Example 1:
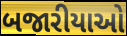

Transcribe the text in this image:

બજારીયાઓ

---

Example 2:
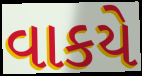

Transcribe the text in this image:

વાકયે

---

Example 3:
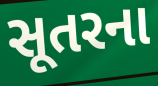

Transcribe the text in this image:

સૂતરના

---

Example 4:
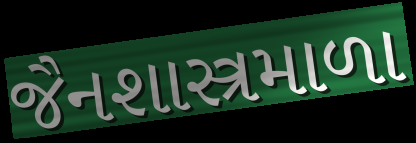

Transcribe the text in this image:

જૈનશાસ્ત્રમાળા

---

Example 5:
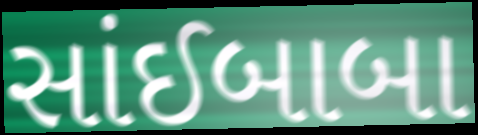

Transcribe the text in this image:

સાંઈબાબા